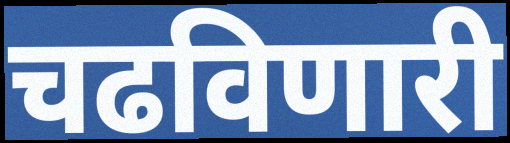
चढविणारी